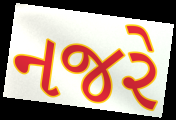
નજરે